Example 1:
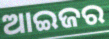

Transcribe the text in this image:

ଆଇଜର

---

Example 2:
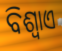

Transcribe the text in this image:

ବିଶ୍ୱାଏ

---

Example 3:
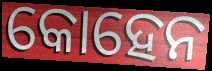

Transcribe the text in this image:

କୋହେନ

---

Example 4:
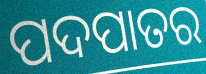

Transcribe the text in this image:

ପଦପାତର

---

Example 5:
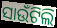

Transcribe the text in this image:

ସାଉଁଟିଲି